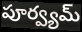
పూర్వ్యమ్